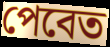
পেবেত